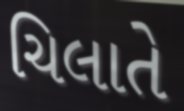
ચિલાતે